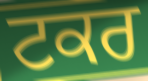
ਟਕਰ